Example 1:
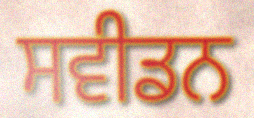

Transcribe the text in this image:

ਸਵੀਡਨ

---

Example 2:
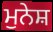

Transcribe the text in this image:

ਮੁਨੇਸ਼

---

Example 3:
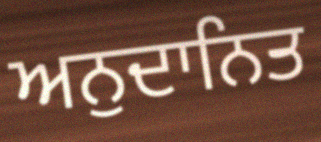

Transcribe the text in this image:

ਅਨੁਦਾਨਿਤ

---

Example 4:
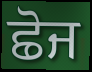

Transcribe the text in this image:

ਛੋਜ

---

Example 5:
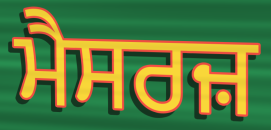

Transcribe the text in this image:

ਮੈਸਰਜ਼